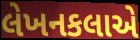
લેખનકલાએ